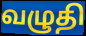
வழுதி